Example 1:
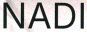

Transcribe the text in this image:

NADI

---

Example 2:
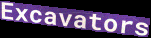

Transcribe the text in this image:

Excavators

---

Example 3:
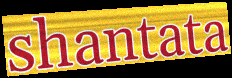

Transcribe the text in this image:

shantata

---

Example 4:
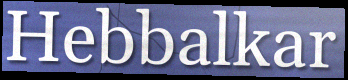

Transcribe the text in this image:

Hebbalkar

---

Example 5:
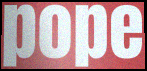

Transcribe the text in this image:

pope